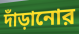
দাঁড়ানোর